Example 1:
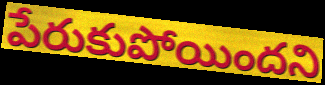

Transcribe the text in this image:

పేరుకుపోయిందని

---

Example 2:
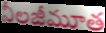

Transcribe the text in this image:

నీలజీమూత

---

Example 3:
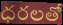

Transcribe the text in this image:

ధరలతో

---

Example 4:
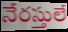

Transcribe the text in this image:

నేరస్తులే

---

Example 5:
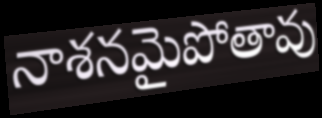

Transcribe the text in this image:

నాశనమైపోతావు